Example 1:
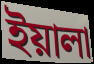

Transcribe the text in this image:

ইয়ালা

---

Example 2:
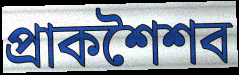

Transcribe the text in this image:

প্রাকশৈশব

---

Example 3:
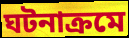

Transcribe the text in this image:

ঘটনাক্রমে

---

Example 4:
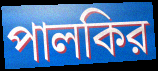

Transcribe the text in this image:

পালকির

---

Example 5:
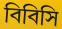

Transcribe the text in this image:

বিবিসি